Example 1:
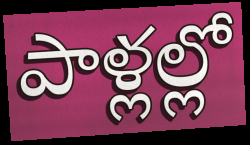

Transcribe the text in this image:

పాళ్లల్లో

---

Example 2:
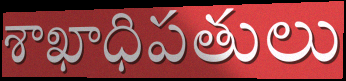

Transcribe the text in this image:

శాఖాధిపతులు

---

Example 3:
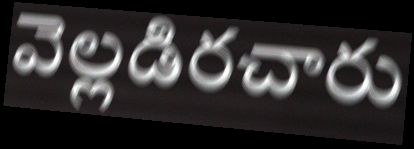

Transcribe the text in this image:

వెల్లడిరచారు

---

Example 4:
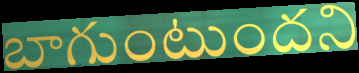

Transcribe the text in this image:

బాగుంటుందని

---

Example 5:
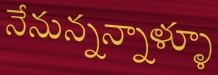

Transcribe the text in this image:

నేనున్నన్నాళ్ళూ